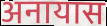
अनायास